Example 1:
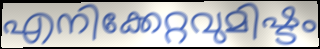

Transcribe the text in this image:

എനിക്കേറ്റവുമിഷ്ടം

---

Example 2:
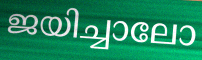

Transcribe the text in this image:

ജയിച്ചാലോ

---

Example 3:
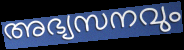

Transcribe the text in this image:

അഭ്യസനവും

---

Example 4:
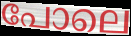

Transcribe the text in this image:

പോലെ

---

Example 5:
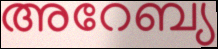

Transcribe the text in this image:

അറേബ്യ